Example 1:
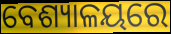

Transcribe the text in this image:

ବେଶ୍ୟାଳୟରେ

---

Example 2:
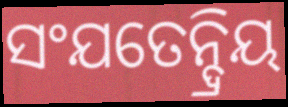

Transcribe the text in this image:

ସଂଯତେନ୍ଦ୍ରିୟ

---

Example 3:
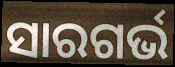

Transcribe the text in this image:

ସାରଗର୍ଭ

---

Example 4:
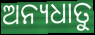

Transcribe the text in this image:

ଅନ୍ୟଧାତୁ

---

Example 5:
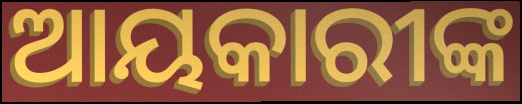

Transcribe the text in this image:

ଆୟକାରୀଙ୍କ